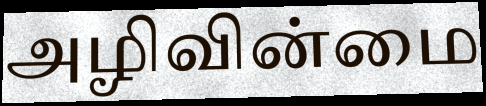
அழிவின்மை